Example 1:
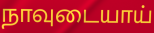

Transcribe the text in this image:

நாவுடையாய்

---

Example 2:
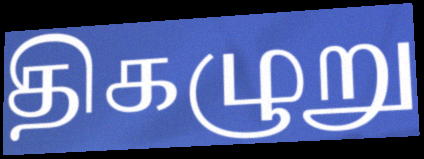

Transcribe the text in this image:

திகழுறு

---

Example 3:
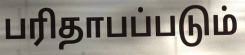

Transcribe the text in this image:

பரிதாபப்படும்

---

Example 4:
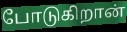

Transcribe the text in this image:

போடுகிறான்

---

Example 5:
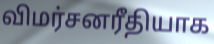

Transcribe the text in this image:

விமர்சனரீதியாக